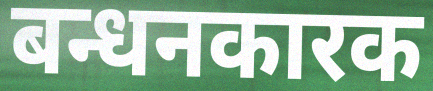
बन्धनकारक